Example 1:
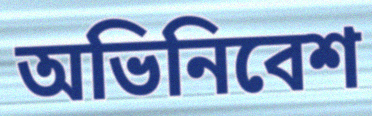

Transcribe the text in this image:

অভিনিবেশ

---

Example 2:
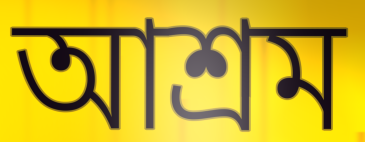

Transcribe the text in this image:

আশ্ৰম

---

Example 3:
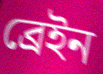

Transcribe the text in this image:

ব্ৰেইন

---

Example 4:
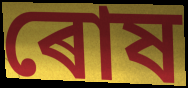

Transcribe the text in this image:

ৰোষ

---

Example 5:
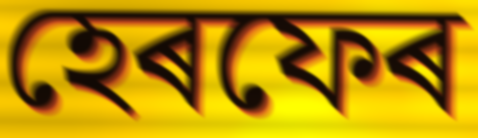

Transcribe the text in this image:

হেৰফেৰ